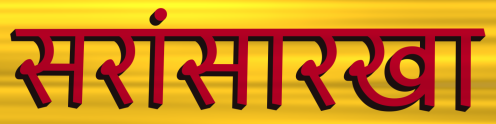
सरांसारखा